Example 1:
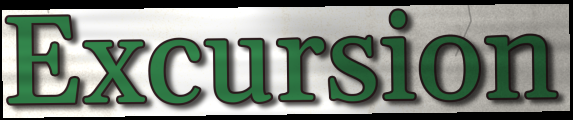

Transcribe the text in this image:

Excursion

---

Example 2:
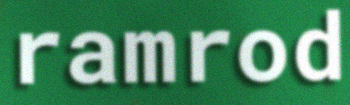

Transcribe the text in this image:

ramrod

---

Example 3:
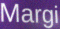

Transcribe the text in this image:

Margi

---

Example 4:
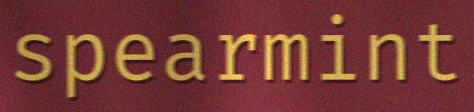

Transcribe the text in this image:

spearmint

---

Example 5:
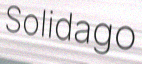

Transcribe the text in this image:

Solidago